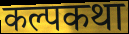
कल्पकथा